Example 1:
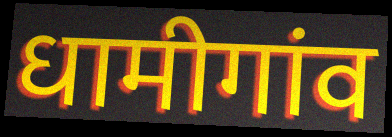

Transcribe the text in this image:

धामीगांव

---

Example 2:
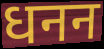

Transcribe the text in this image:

धनन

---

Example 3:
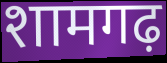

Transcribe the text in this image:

शामगढ़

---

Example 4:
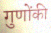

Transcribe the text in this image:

गुणोंकी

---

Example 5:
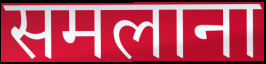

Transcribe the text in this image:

समलाना